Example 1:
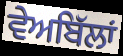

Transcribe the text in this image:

ਵੇਅਬਿੱਲਾਂ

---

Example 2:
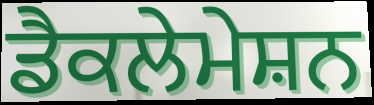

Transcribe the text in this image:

ਡੈਕਲੇਮੇਸ਼ਨ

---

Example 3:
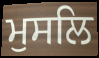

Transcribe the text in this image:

ਮੁਸਲਿ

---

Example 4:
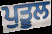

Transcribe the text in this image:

ਪੁਤੂਲ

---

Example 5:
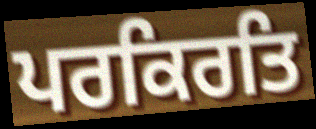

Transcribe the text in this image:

ਪਰਕਿਰਤਿ